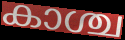
കാശ്ച